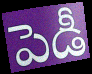
పెడీ